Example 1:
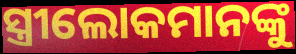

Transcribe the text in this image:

ସ୍ତ୍ରୀଲୋକମାନଙ୍କୁ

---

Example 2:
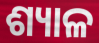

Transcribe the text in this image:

ଶ୍ୟାଳ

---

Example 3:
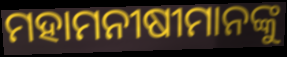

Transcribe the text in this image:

ମହାମନୀଷୀମାନଙ୍କୁ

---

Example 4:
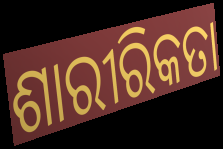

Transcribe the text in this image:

ଶାରୀରିକତା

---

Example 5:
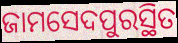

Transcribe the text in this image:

ଜାମସେଦପୁରସ୍ଥିତ